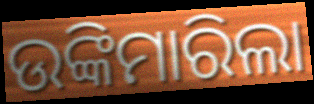
ଉଙ୍କିମାରିଲା